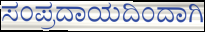
ಸಂಪ್ರದಾಯದಿಂದಾಗಿ